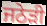
ਜਠੇੜੀ